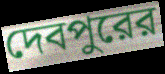
দেবপুরের